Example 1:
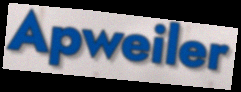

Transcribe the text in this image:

Apweiler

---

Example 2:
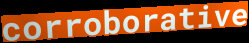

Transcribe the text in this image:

corroborative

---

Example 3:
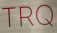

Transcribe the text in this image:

TRQ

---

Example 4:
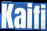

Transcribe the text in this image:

Kaifi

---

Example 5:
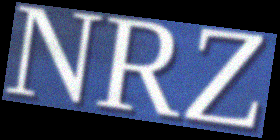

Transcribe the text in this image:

NRZ